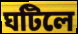
ঘটিলে